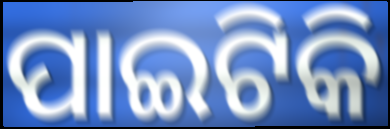
ପାଇଟିକି